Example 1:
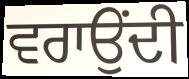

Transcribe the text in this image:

ਵਰਾਉਂਦੀ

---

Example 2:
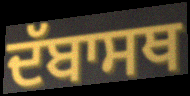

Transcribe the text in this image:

ਦੱਬਾਸਥ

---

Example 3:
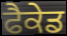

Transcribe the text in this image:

ਫੈਕੇਡ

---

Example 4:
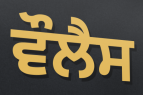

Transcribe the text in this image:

ਵੌਲੈਸ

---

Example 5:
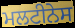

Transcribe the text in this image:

ਮਲਟੀਨੇਸ